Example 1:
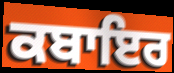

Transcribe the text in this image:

ਕਬਾਇਰ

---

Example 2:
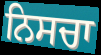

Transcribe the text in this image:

ਨਿਸਚਾ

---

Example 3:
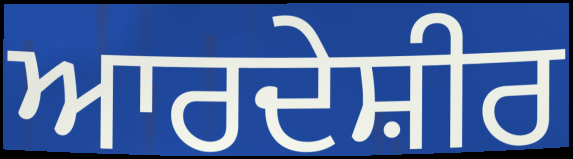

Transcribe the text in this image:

ਆਰਦੇਸ਼ੀਰ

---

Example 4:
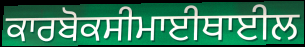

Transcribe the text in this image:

ਕਾਰਬੋਕਸੀਮਾਈਥਾਈਲ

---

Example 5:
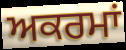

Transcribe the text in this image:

ਅਕਰਮਾਂ